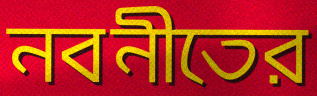
নবনীতের